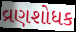
વ્રણશોધક